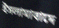
ইসলামাবাদে